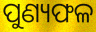
ପୁଣ୍ୟଫଳ